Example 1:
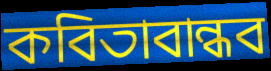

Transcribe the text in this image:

কবিতাবান্ধব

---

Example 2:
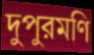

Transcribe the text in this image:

দুপুরমণি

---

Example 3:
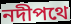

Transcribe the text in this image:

নদীপথে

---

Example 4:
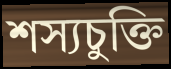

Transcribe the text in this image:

শস্যচুক্তি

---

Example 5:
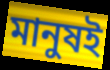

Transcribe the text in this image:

মানুষই